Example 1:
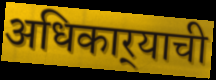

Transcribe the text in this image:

अधिकार्याची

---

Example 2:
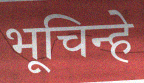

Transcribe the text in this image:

भूचिन्हे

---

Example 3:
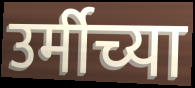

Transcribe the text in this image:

उर्मीच्या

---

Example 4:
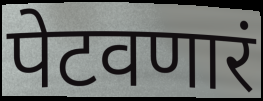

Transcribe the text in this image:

पेटवणारं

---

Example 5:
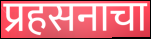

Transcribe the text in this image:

प्रहसनाचा